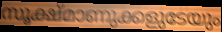
സൂക്ഷ്മാണുക്കളുടേയും